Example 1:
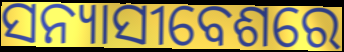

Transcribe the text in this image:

ସନ୍ୟାସୀବେଶରେ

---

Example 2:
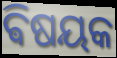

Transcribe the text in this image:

ଵିଷୟକ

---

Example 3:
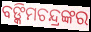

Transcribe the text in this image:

ବଙ୍କିମଚନ୍ଦ୍ରଙ୍କର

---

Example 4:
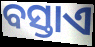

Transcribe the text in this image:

ବସ୍ତାଏ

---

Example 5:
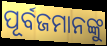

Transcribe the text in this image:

ପୂର୍ବଜମାନଙ୍କୁ